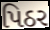
પિઠર